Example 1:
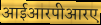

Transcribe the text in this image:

आईआरपीआरए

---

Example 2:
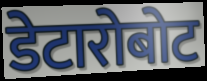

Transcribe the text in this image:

डेटारोबोट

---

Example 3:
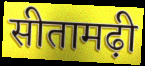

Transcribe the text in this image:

सीतामढ़ी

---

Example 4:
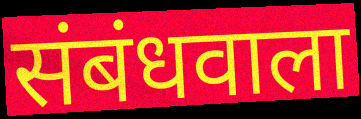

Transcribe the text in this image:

संबंधवाला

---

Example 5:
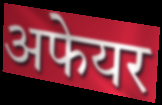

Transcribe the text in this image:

अफेयर